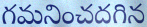
గమనించదగిన